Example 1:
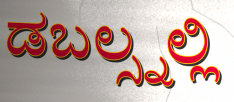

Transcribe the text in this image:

ಡಬಲ್ಸ್ನಲ್ಲಿ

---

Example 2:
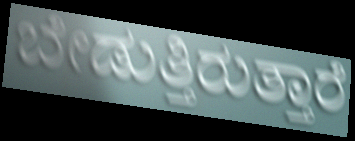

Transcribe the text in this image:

ಬೇಡುತ್ತಿರುತ್ತಾರೆ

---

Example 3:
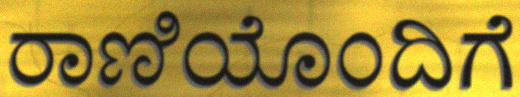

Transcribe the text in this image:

ರಾಣಿಯೊಂದಿಗೆ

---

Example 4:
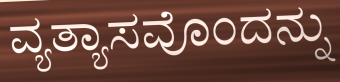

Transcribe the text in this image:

ವ್ಯತ್ಯಾಸವೊಂದನ್ನು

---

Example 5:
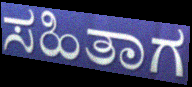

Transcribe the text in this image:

ಸಹಿತಾಗ